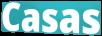
Casas